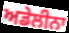
ਅਡੇਲੀਨਾ